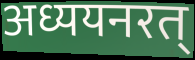
अध्ययनरत्